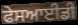
ਫੇਸਆਈਡੀ